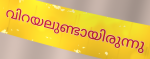
വിറയലുണ്ടായിരുന്നു